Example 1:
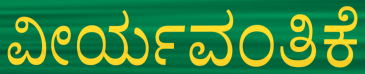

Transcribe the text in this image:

ವೀರ್ಯವಂತಿಕೆ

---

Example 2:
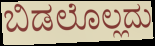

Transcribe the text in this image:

ಬಿಡಲೊಲ್ಲದು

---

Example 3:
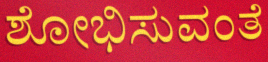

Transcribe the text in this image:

ಶೋಭಿಸುವಂತೆ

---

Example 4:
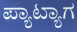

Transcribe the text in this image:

ಪ್ಯಾಟ್ಯಾಗ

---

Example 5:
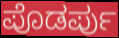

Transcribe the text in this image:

ಪೊಡರ್ಪು